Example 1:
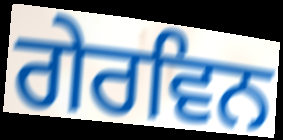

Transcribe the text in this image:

ਗੇਰਵਿਨ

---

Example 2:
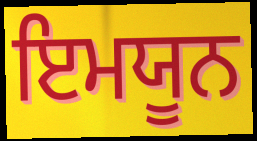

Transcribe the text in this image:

ਇਮਯੂਨ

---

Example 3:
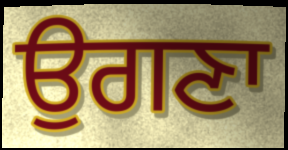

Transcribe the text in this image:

ਉਗਣਾ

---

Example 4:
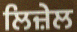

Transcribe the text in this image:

ਲਿਜ਼ੇਲ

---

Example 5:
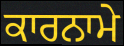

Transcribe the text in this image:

ਕਾਰਨਾਮੇ